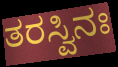
ತರಸ್ವಿನಃ